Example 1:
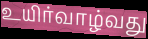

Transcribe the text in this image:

உயிர்வாழ்வது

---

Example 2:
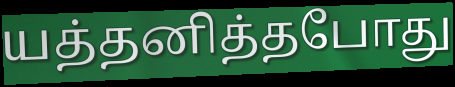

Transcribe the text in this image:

யத்தனித்தபோது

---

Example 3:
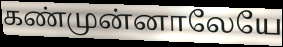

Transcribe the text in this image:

கண்முன்னாலேயே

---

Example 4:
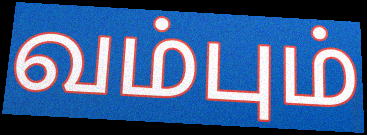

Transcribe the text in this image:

வம்பும்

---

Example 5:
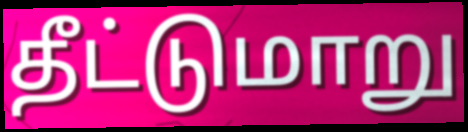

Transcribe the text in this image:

தீட்டுமாறு